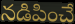
నడిపించే